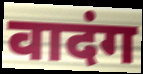
वादंग